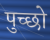
पुच्छो